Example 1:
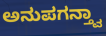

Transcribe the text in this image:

ಅನುಪಗನ್ತ್ವಾ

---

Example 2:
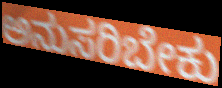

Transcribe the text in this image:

ಅನುಸರಿಬೇಕು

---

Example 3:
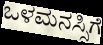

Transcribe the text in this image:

ಒಳಮನಸ್ಸಿಗೆ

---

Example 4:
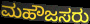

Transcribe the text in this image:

ಮಹೌಜಸರು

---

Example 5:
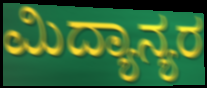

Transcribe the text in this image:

ಮಿದ್ಯಾನ್ಯರ